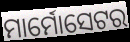
ମାର୍ମୋସେଟର